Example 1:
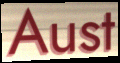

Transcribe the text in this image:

Aust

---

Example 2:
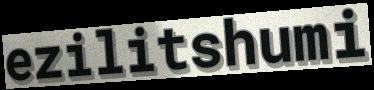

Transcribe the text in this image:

ezilitshumi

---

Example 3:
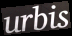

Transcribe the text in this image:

urbis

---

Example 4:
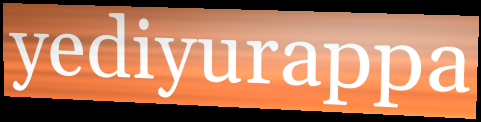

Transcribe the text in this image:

yediyurappa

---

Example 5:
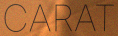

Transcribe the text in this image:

CARAT